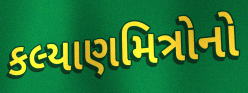
કલ્યાણમિત્રોનો